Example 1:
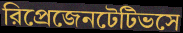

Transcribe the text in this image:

রিপ্রেজেনটেটিভসে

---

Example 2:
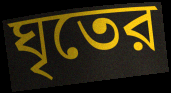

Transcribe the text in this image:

ঘৃতের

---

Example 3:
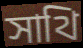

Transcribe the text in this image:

সাথি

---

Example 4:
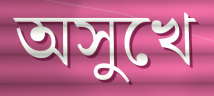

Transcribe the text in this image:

অসুখে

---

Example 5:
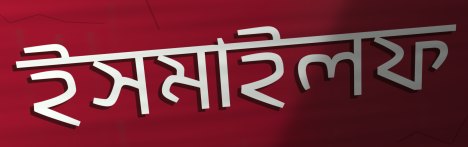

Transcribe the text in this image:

ইসমাইলফ